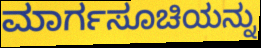
ಮಾರ್ಗಸೂಚಿಯನ್ನು